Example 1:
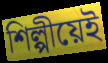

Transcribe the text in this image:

শিল্পীয়েই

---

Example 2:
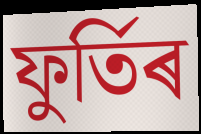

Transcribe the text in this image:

ফুৰ্তিৰ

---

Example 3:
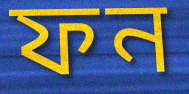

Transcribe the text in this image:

ফন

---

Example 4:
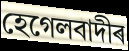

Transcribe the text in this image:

হেগেলবাদীৰ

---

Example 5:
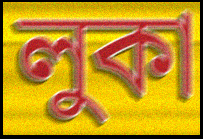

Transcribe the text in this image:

লুকা